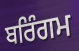
ਬਰਿੰਗਮ